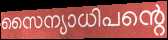
സൈന്യാധിപന്റെ